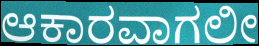
ಆಕಾರವಾಗಲೀ